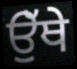
ਉੁੱਥੇ